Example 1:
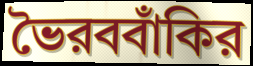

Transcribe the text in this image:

ভৈরববাঁকির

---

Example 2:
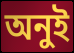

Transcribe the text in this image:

অনুই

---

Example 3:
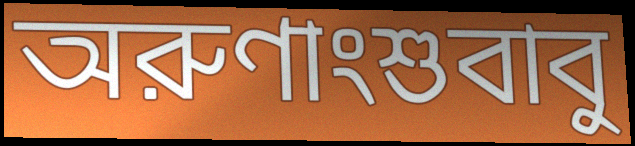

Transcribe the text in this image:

অরুণাংশুবাবু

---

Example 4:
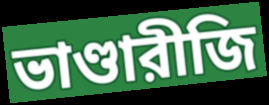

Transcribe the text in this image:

ভাণ্ডারীজি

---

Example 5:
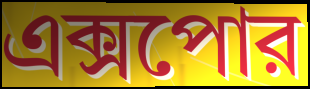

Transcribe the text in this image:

এক্সপোর